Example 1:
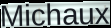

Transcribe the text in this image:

Michaux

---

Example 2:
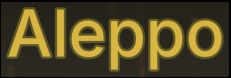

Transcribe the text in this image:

Aleppo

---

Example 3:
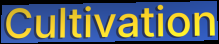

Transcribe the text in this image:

Cultivation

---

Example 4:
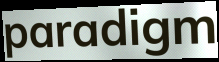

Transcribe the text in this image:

paradigm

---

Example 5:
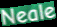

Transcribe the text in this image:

Neale